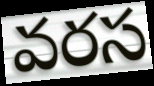
వరస